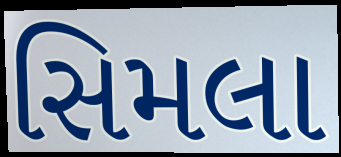
સિમલા